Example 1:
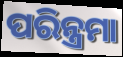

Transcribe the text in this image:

ପରିନ୍ତ୍ରମା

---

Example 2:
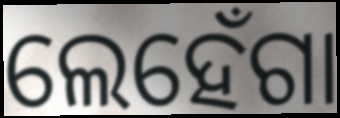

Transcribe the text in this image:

ଲେହେଁଗା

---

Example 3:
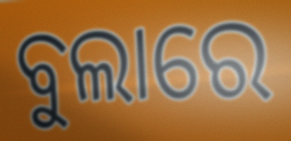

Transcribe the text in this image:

ବୁଲାରେ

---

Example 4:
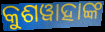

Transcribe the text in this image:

କୁଶୱାହାଙ୍କ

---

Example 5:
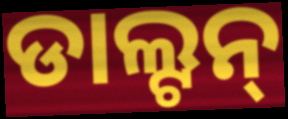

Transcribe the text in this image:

ଡାଲ୍ଟନ୍